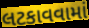
લટકાવવામાં